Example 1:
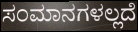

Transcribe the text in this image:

ಸಂಮಾನಗಳಲ್ಲದೆ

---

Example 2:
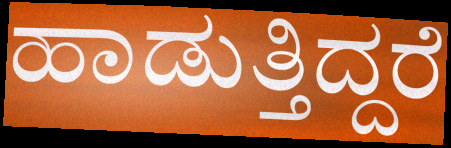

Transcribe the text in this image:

ಹಾಡುತ್ತಿದ್ದರೆ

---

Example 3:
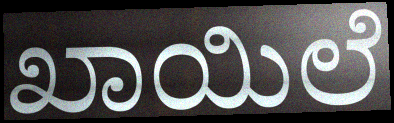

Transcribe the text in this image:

ಖಾಯಿಲೆ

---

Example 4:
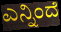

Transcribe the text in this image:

ಎನ್ನಿಂದೆ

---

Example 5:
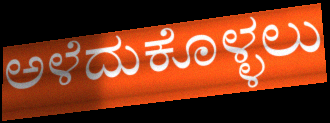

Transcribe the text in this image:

ಅಳೆದುಕೊಳ್ಳಲು